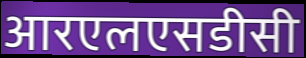
आरएलएसडीसी